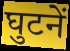
घुटनें